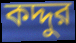
কদ্দুর